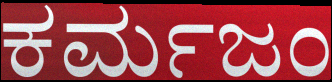
ಕರ್ಮಜಂ